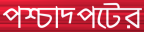
পশ্চাদ্পটের